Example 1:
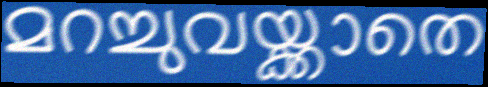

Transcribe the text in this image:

മറച്ചുവയ്ക്കാതെ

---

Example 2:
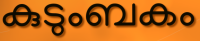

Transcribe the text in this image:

കുടുംബകം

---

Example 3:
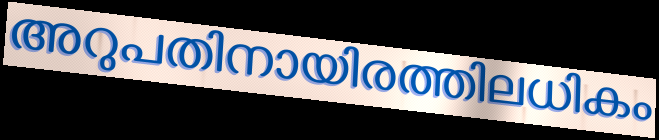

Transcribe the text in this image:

അറുപതിനായിരത്തിലധികം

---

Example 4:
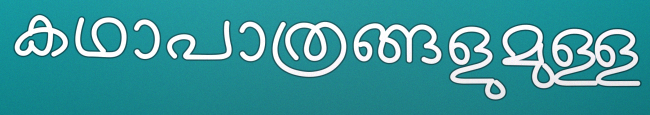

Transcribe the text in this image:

കഥാപാത്രങ്ങളുമുള്ള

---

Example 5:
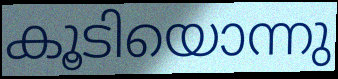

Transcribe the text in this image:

കൂടിയൊന്നു